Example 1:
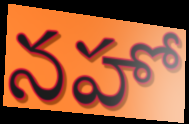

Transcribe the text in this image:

నహో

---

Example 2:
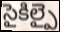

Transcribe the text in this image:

సైకిల్పై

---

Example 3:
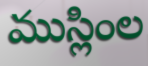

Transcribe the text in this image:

ముస్లింల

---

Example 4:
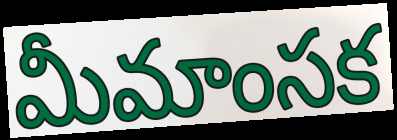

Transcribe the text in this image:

మీమాంసక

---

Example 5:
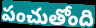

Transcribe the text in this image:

పంచుతోంది